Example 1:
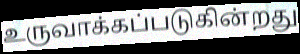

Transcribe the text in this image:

உருவாக்கப்படுகின்றது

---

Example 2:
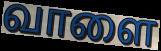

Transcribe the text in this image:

வாளை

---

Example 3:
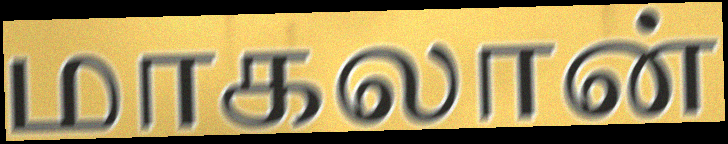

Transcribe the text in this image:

மாகலான்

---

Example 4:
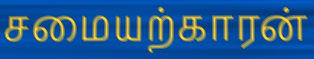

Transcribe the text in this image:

சமையற்காரன்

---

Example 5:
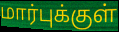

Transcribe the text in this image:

மார்புக்குள்